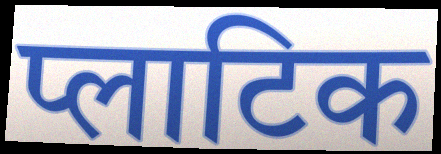
प्लाटिक